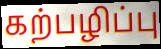
கற்பழிப்பு